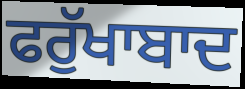
ਫਰੁੱਖਾਬਾਦ